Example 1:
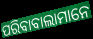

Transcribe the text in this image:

ପରିବାବାଲାମାନେ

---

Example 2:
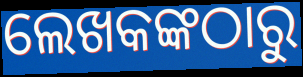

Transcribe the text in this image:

ଲେଖକଙ୍କଠାରୁ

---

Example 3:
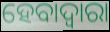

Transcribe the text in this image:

ହେବାଦ୍ୱାରା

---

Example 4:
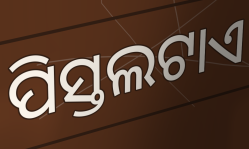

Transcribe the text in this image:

ପିସ୍ତଲଟାଏ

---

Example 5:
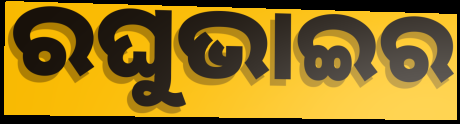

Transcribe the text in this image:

ରଘୁଭାଇର